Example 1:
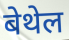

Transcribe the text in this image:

बेथेल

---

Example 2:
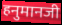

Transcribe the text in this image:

हनुमानजी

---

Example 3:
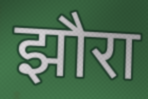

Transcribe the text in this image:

झौरा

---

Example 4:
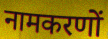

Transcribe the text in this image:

नामकरणों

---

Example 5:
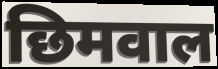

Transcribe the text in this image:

छिमवाल